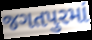
જગતપુરમાં